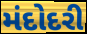
મંદોદરી